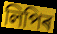
লিপিৰ